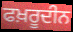
ਫਖ਼ਰੂਦੀਨ